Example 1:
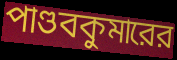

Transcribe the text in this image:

পাণ্ডবকুমারের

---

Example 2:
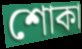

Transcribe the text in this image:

শোকা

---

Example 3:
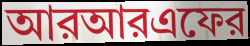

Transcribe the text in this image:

আরআরএফের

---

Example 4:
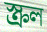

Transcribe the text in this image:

স্ক্রল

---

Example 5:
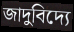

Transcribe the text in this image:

জাদুবিদ্যে